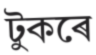
টুকৰে